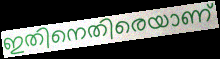
ഇതിനെതിരെയാണ്